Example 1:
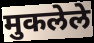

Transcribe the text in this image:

मुकलेले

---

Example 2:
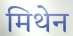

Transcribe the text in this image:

मिथेन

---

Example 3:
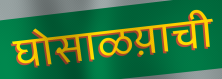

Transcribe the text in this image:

घोसाळय़ाची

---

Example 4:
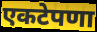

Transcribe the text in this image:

एकटेपणा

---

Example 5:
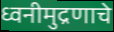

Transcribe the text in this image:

ध्वनीमुद्रणाचे